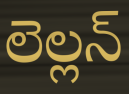
లెల్లన్